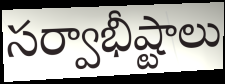
సర్వాభీష్టాలు